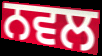
ਨਵਲ